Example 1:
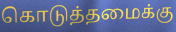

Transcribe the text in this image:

கொடுத்தமைக்கு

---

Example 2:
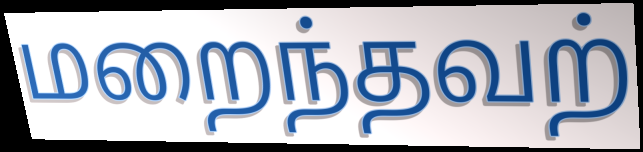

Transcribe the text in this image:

மறைந்தவற்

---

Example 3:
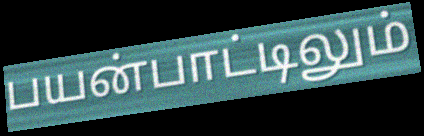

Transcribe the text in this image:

பயன்பாட்டிலும்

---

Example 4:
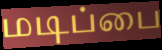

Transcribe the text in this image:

மடிப்பை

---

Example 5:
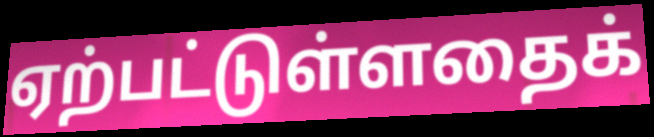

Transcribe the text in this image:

ஏற்பட்டுள்ளதைக்